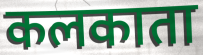
कलकाता